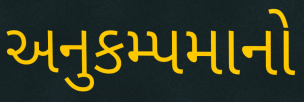
અનુકમ્પમાનો